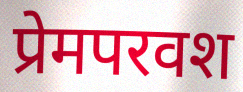
प्रेमपरवश